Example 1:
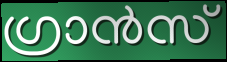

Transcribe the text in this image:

ഗ്രാൻസ്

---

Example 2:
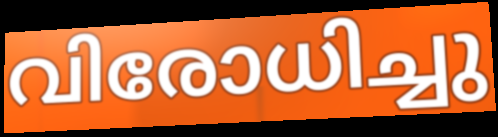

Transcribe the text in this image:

വിരോധിച്ചു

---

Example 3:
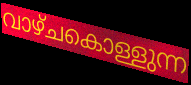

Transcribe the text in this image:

വാഴ്ചകൊള്ളുന്ന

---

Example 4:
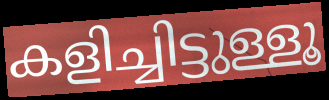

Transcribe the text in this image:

കളിച്ചിട്ടുള്ളൂ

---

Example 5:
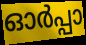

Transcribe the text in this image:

ഓർപ്പാ